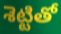
శెట్టితో